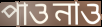
পাওনাও